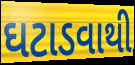
ઘટાડવાથી